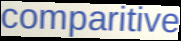
comparitive